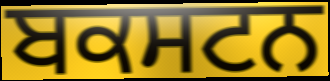
ਬਕਸਟਨ